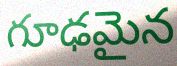
గూఢమైన